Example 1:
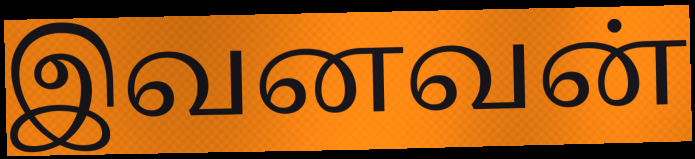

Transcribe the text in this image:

இவனவன்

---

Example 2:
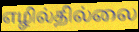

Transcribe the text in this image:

எழில்தில்லை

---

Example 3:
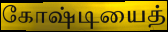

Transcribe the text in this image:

கோஷ்டியைத்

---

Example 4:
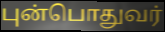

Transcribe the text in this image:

புன்பொதுவர்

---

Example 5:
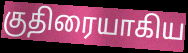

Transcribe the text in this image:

குதிரையாகிய